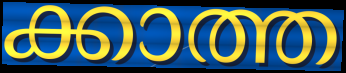
ക്കാത്ത